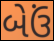
બેઉં